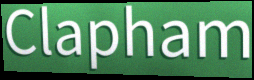
Clapham